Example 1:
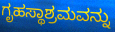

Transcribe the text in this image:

ಗೃಹಸ್ಥಾಶ್ರಮವನ್ನು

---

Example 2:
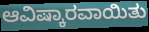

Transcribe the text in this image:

ಆವಿಷ್ಕಾರವಾಯಿತು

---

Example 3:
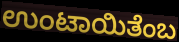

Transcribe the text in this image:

ಉಂಟಾಯಿತೆಂಬ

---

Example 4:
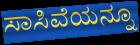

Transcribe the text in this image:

ಸಾಸಿವೆಯನ್ನೂ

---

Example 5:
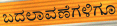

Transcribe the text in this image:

ಬದಲಾವಣೆಗಳಿಗೂ